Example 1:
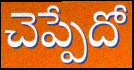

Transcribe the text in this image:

చెప్పేదో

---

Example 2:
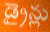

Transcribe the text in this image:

డ్రైన్లు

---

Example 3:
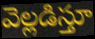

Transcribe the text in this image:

వెల్లడిస్తూ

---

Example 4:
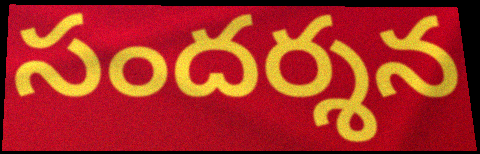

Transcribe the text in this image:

సందర్శన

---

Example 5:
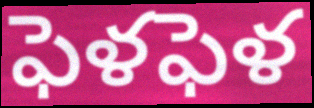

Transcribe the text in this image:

ఫెళఫెళ